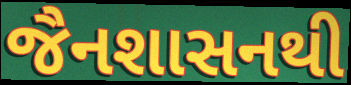
જૈનશાસનથી